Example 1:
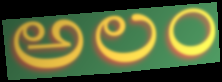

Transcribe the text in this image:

అలం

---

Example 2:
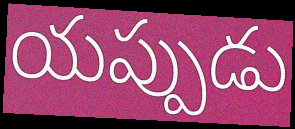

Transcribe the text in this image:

యప్పుడు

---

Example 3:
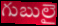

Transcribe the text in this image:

గుబులై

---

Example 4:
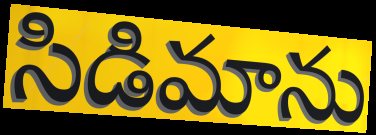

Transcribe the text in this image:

సిడిమాను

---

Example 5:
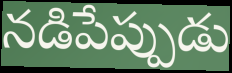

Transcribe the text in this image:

నడిపేప్పుడు